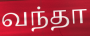
வந்தா